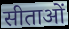
सीताओं